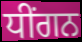
ਧੀਂਗਨ